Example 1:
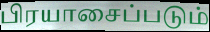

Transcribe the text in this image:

பிரயாசைப்படும்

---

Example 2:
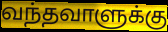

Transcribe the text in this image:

வந்தவாளுக்கு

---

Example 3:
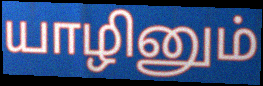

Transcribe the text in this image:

யாழினும்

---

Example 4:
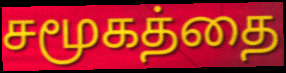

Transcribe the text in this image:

சமூகத்தை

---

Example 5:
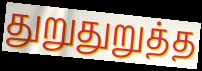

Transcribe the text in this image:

துறுதுறுத்த